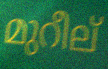
മുറീല്